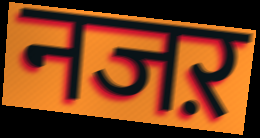
नजऱ